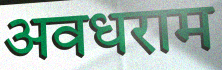
अवधराम